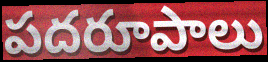
పదరూపాలు